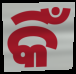
କିଁ